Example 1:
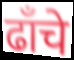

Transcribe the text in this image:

ढाँचे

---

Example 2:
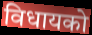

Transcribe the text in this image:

विधायको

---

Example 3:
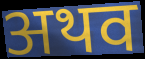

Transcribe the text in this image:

अथव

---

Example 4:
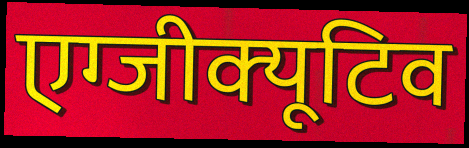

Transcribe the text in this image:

एग्जीक्यूटिव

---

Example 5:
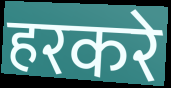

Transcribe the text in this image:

हरकरे